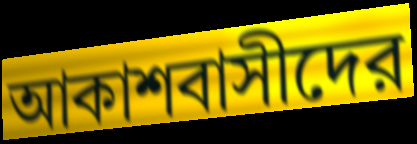
আকাশবাসীদের